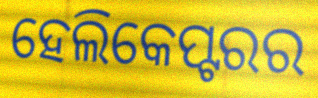
ହେଲିକେପ୍ଟରର